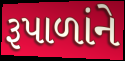
રૂપાળાંને